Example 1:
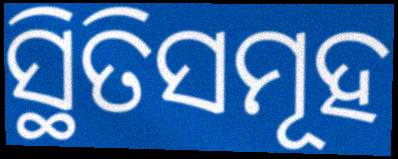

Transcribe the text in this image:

ସ୍ଥିତିସମୂହ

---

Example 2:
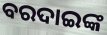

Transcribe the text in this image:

ବରଦାଇଙ୍କ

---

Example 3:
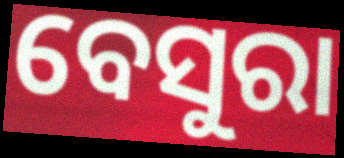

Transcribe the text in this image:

ବେସୁରା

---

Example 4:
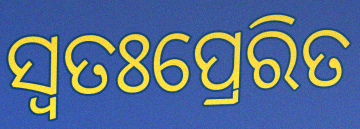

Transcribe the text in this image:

ସ୍ୱତଃପ୍ରେରିତ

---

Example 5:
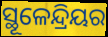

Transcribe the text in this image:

ସ୍ଥୂଳେନ୍ଦ୍ରିୟର